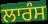
ਲਾਰੰਸ